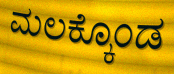
ಮಲಕ್ಕೊಂಡ